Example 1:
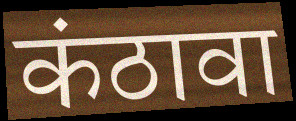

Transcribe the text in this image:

कंठावा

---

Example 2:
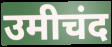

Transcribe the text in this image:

उमीचंद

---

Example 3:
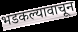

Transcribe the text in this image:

भडकल्यावाचून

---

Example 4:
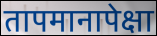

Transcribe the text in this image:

तापमानापेक्षा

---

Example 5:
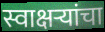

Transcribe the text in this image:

स्वाक्षऱ्यांचा